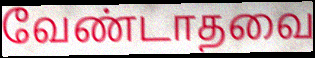
வேண்டாதவை